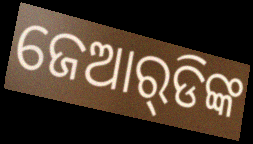
ଜେଆର୍‌ଡିଙ୍କ